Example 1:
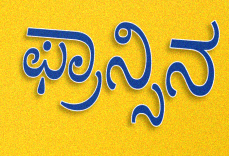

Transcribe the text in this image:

ಫ್ರಾನ್ಸಿನ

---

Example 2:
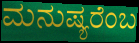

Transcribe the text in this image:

ಮನುಷ್ಯರೆಂಬ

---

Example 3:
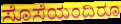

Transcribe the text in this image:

ಸೊಸೆಯಂದಿರೂ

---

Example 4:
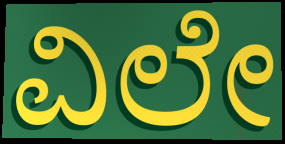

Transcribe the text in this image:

ವಿಲೇ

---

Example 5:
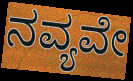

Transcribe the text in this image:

ನವ್ಯವೇ